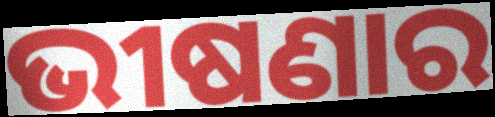
ଭୀଷଣାର